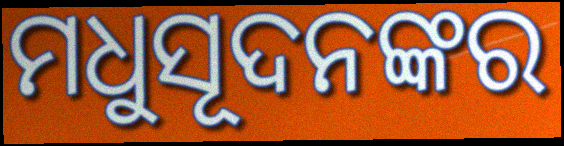
ମଧୁସୂଦନଙ୍କର